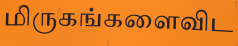
மிருகங்களைவிட